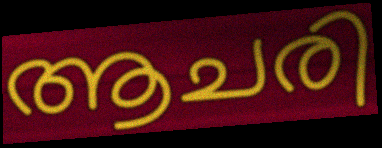
ആചരി